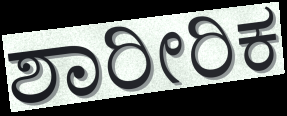
ಶಾರೀರಿಕ